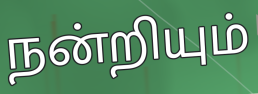
நன்றியும்